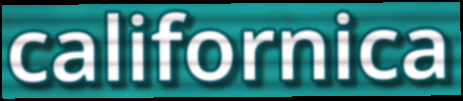
californica